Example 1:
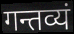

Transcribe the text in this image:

गन्तव्यं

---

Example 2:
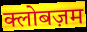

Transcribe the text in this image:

क्लोबज़म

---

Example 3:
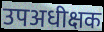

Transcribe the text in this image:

उपअधीक्षक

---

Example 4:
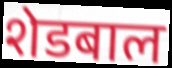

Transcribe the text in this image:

शेडबाल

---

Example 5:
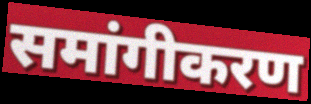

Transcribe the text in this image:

समांगीकरण